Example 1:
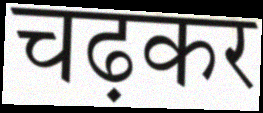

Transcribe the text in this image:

चढ़कर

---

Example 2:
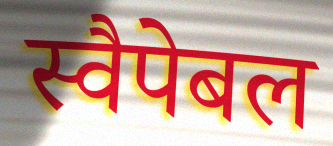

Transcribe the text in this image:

स्वैपेबल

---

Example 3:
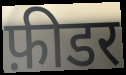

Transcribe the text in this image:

फ़ीडर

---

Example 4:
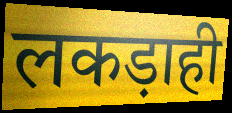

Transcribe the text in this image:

लकड़ाही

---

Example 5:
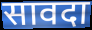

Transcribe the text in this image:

सावदा